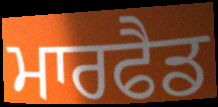
ਮਾਰਫੈਡ